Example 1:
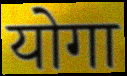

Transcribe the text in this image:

योगा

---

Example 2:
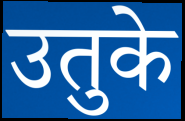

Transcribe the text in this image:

उतुके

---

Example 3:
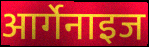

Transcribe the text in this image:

आर्गेनाइज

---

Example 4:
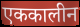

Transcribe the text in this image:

एककालीन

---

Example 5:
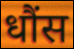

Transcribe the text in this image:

धौंस